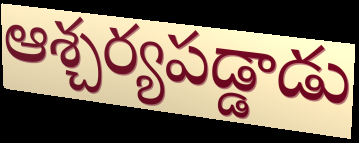
ఆశ్చర్యపడ్డాడు